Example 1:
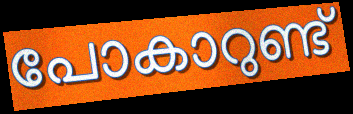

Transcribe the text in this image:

പോകാറുണ്ട്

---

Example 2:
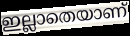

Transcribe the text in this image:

ഇല്ലാതെയാണ്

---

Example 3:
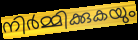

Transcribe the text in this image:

നിർമ്മിക്കുകയും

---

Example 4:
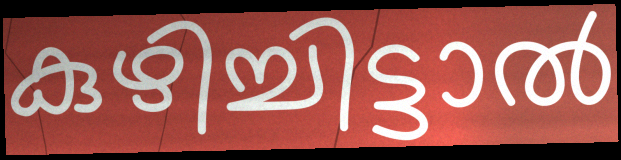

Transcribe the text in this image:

കുഴിച്ചിട്ടാൽ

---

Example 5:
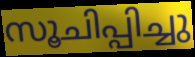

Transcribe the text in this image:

സൂചിപ്പിച്ചു